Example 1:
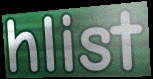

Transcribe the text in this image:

hlist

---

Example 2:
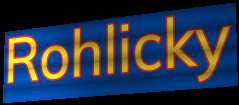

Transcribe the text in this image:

Rohlicky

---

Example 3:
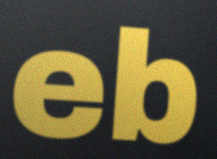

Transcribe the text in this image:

eb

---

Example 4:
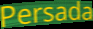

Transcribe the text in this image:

Persada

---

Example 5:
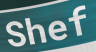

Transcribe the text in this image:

Shef